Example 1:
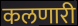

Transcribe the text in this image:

कलणारी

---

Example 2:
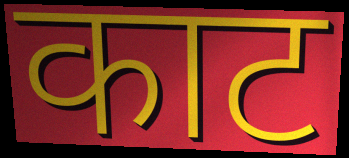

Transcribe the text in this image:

काट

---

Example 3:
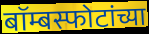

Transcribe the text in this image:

बॉम्बस्फोटांच्या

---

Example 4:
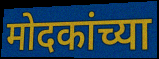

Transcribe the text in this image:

मोदकांच्या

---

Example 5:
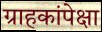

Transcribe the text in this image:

ग्राहकांपेक्षा